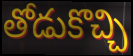
తోడుకొచ్చి